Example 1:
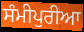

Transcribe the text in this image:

ਸੰਮੀਪੁਰੀਆ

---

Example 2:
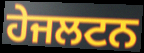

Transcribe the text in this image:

ਹੇਜਲਟਨ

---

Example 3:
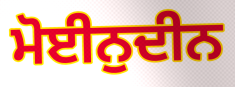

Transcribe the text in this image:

ਮੋਈਨੁਦੀਨ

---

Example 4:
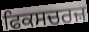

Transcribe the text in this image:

ਫਿਕਸਚਰਜ਼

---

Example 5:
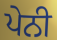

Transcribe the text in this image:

ਪੇਨੀ